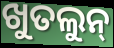
ଖୁତଲୁନ୍